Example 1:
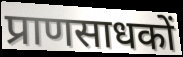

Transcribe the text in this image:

प्राणसाधकों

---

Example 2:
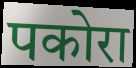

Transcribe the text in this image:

पकोरा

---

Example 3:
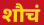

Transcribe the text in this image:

शौचं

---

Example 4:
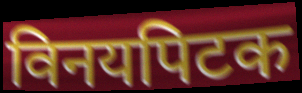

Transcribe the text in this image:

विनयपिटक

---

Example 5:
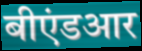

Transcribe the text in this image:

बीएंडआर